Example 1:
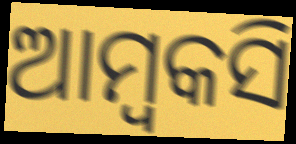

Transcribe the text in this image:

ଆମ୍ବକସି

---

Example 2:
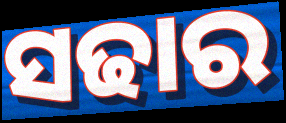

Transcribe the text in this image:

ସଢାର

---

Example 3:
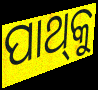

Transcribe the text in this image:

ପାଥ୍‌କୁ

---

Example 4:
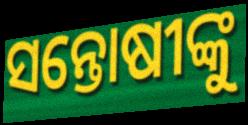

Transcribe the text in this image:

ସନ୍ତୋଷୀଙ୍କୁ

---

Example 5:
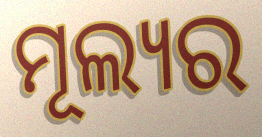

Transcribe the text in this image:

ମୂଲ୍ଯର